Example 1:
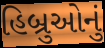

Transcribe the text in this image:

હિબ્રુઓનું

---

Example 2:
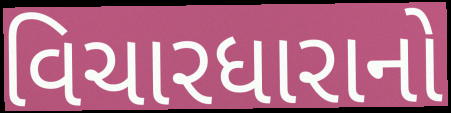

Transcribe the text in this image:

વિચારધારાનો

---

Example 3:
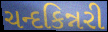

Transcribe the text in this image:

ચન્દકિન્નરી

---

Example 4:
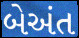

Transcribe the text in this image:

બેઅંત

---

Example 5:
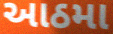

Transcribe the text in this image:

આઠમા